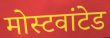
मोस्टवांटेड